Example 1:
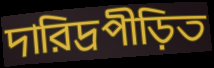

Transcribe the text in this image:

দারিদ্রপীড়িত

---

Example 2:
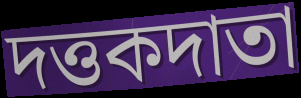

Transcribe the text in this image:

দত্তকদাতা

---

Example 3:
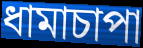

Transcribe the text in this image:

ধামাচাপা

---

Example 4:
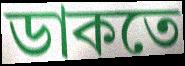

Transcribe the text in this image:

ডাকতে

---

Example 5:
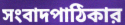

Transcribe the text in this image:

সংবাদপাঠিকার